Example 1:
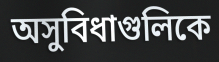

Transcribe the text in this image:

অসুবিধাগুলিকে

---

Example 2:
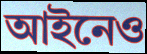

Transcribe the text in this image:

আইনেও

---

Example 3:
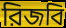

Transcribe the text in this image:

রিজবি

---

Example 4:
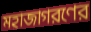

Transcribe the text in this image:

মহাজাগরণের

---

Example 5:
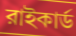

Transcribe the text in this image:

রাইকার্ড